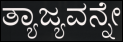
ತ್ಯಾಜ್ಯವನ್ನೇ